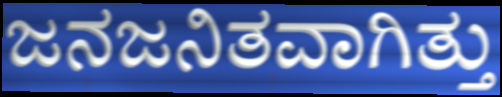
ಜನಜನಿತವಾಗಿತ್ತು